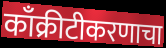
काँक्रीटीकरणाचा